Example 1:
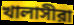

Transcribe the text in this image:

খালাসীরা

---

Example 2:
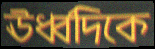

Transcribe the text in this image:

ঊর্ধ্বদিকে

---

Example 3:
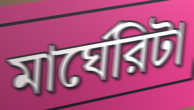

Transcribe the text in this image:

মার্ঘেরিটা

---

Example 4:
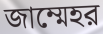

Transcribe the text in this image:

জাম্মেহর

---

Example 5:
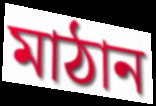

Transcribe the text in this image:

মাঠান